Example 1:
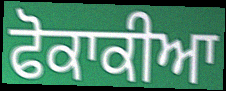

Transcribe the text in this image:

ਫੋਕਾਕੀਆ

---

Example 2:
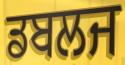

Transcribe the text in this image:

ਡਬਲਜ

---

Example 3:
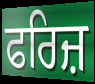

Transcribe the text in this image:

ਫਰਿਜ਼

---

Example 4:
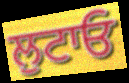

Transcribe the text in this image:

ਲੁਟਾਓ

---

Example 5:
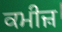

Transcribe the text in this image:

ਕਮੀਜ਼